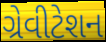
ગ્રેવીટેશન